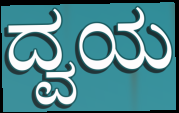
ದ್ವಯ